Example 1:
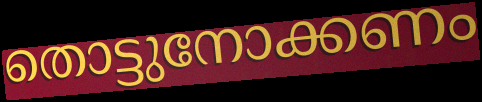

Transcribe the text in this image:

തൊട്ടുനോക്കണം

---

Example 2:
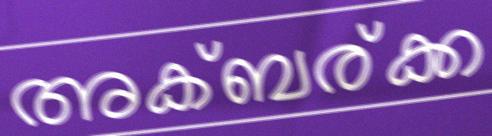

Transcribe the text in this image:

അക്ബര്ക്ക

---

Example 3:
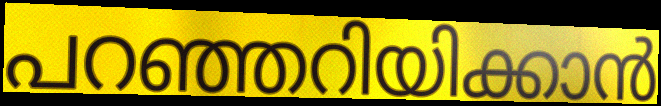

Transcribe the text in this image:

പറഞ്ഞറിയിക്കാൻ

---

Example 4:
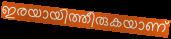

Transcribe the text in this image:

ഇരയായിത്തീരുകയാണ്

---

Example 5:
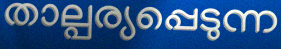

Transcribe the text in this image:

താല്പര്യപ്പെടുന്ന